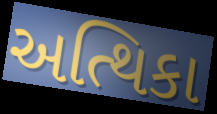
અત્થિકા